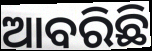
ଆବରିଛି